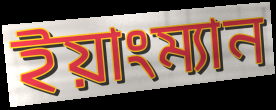
ইয়াংম্যান